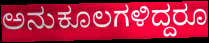
ಅನುಕೂಲಗಳಿದ್ದರೂ